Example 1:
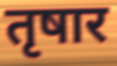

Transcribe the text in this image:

तृषार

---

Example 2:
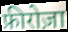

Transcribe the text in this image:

फ़ीरोज़ा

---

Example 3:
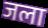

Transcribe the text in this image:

जला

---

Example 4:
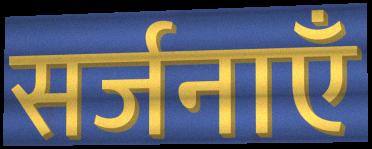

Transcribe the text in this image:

सर्जनाएँ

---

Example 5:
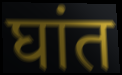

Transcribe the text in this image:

घांत